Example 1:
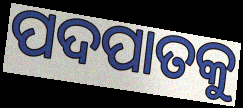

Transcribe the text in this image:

ପଦପାତକୁ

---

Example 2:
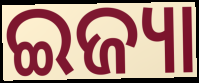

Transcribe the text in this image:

ଇଜ୍ୟା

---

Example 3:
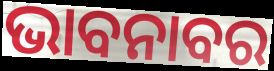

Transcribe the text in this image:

ଭାବନାବର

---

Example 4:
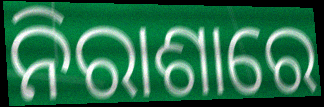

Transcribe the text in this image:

ନିରାଶାରେ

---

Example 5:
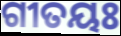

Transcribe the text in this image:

ଗୀତୟଃ